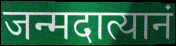
जन्मदात्यानं